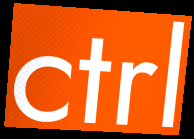
ctrl